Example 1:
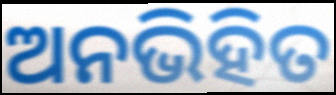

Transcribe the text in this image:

ଅନଭିହିତ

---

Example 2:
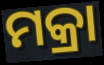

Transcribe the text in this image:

ମକ୍ରା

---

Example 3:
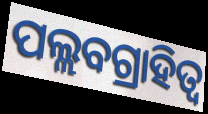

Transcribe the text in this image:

ପଲ୍ଲବଗ୍ରାହିତ୍ୱ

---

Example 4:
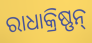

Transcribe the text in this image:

ରାଧାକ୍ରିଷ୍ଣନ୍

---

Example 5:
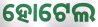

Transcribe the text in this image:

ହୋଟେଲ